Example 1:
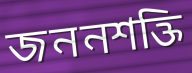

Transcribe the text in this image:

জননশক্তি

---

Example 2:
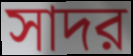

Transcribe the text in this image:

সাদর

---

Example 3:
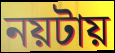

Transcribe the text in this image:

নয়টায়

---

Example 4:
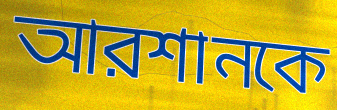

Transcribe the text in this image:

আরশানকে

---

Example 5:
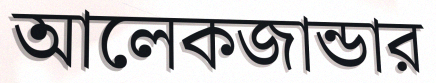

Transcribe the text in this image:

আলেকজান্ডার